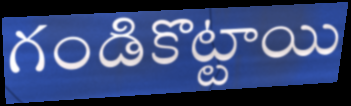
గండికొట్టాయి